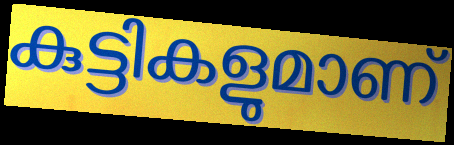
കുട്ടികളുമാണ്